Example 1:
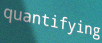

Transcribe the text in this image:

quantifying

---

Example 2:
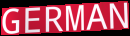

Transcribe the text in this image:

GERMAN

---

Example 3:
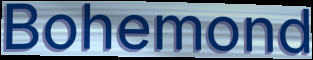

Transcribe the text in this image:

Bohemond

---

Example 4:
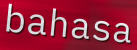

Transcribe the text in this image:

bahasa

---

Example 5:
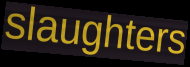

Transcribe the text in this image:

slaughters